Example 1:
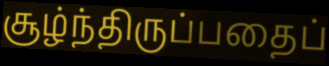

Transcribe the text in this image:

சூழ்ந்திருப்பதைப்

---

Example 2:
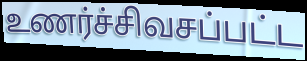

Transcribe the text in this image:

உணர்ச்சிவசப்பட்ட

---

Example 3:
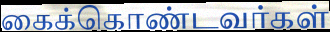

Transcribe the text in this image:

கைக்கொண்டவர்கள்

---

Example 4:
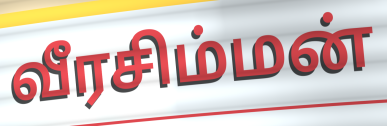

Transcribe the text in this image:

வீரசிம்மன்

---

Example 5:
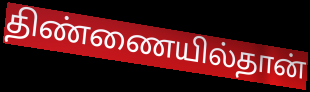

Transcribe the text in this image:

திண்ணையில்தான்